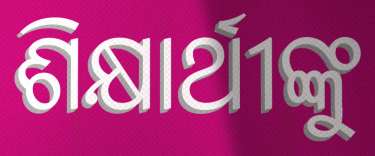
ଶିକ୍ଷାର୍ଥୀଙ୍କୁ